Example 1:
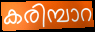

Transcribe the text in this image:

കരിമ്പാറ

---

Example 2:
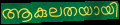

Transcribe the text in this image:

ആകുലതയായി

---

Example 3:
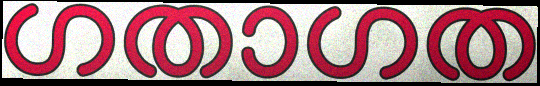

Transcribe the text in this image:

ഗതാഗത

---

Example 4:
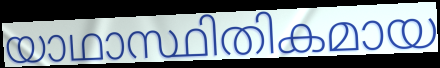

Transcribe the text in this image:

യാഥാസ്ഥിതികമായ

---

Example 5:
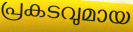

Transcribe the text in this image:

പ്രകടവുമായ